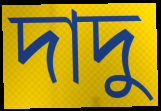
দাদু